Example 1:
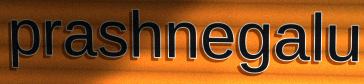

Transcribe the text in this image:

prashnegalu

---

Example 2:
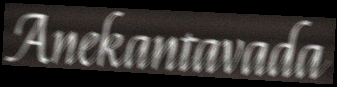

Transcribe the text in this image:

Anekantavada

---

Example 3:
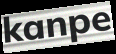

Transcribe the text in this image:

kanpe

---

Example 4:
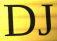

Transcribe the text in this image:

DJ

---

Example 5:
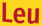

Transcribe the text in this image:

Leu